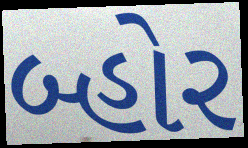
બ્હોર